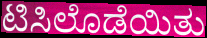
ಟಿಸಿಲೊಡೆಯಿತು